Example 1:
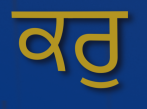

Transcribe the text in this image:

ਕਰੁ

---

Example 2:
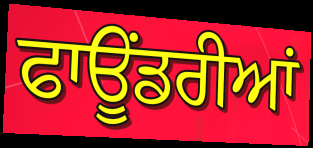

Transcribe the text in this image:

ਫਾਊਂਡਰੀਆਂ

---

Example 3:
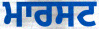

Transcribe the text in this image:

ਮਾਰਸਟ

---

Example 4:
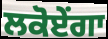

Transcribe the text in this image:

ਲਕੋਏਂਗਾ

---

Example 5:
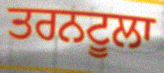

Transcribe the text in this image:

ਤਰਨਟੂਲਾ